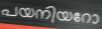
പയനിയറോ